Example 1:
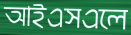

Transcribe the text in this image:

আইএসএলে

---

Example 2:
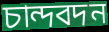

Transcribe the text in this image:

চান্দবদন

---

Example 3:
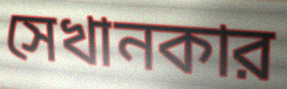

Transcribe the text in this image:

সেখানকার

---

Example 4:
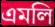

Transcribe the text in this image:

এমলি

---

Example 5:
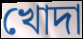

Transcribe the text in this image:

খোদা